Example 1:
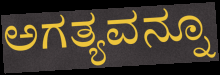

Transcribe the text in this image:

ಅಗತ್ಯವನ್ನೂ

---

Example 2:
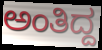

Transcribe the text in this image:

ಅಂತಿದ್ದ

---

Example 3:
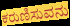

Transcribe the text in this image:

ಕರುಣಿಸುವನು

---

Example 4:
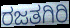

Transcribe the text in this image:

ರಜತಗಿರಿ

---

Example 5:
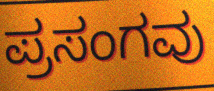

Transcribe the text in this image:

ಪ್ರಸಂಗವು